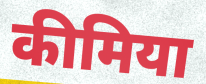
कीमिया